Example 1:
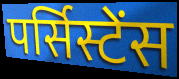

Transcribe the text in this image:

पर्सिस्टेंस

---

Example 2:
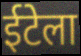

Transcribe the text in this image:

ईटेला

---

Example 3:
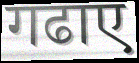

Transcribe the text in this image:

गढाए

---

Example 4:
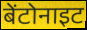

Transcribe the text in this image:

बेंटोनाइट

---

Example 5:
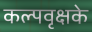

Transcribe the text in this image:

कल्पवृक्षके